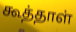
கூத்தாள்